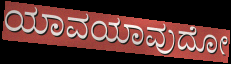
ಯಾವಯಾವುದೋ